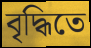
বৃদ্ধিতে